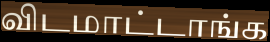
விடமாட்டாங்க